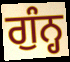
ਗੁੰਨ੍ਹ